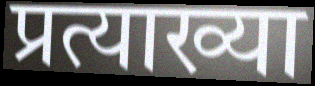
प्रत्याख्या